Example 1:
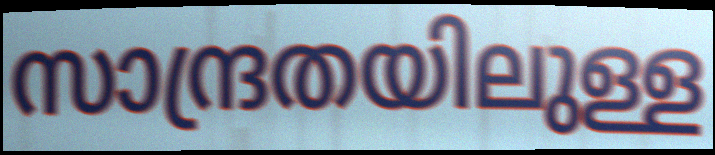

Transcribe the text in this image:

സാന്ദ്രതയിലുള്ള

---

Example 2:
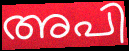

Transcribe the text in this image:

അപി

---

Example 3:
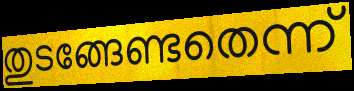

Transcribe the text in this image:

തുടങ്ങേണ്ടതെന്ന്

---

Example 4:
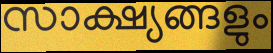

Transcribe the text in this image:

സാക്ഷ്യങ്ങളും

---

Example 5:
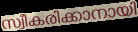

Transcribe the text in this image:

സ്വീകരിക്കാനായി